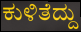
ಕುಳಿತೆದ್ದು